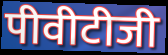
पीवीटीजी